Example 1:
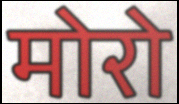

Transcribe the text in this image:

मोरो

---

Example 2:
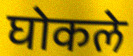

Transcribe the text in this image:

घोकले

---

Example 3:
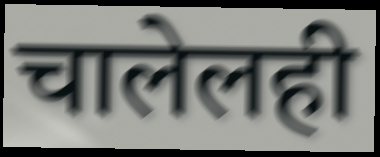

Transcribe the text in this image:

चालेलही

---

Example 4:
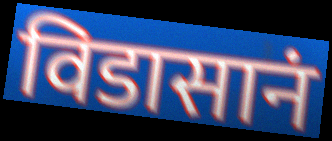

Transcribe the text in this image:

विडासानं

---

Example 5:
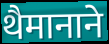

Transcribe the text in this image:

थैमानाने